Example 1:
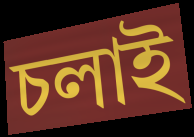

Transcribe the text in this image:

চলাই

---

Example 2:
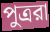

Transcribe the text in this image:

পুত্ররা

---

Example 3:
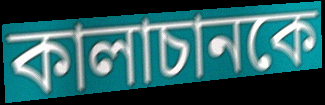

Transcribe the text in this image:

কালাচানকে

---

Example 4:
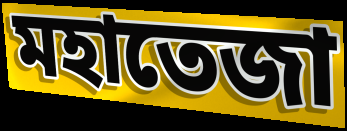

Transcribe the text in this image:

মহাতেজা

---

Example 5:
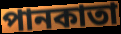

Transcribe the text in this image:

পানকাতা